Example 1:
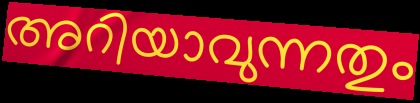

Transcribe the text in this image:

അറിയാവുന്നതും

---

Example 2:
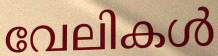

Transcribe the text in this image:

വേലികൾ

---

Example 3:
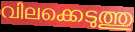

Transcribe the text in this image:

വിലക്കെടുത്തു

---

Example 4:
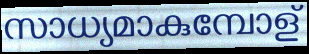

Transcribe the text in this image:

സാധ്യമാകുമ്പോള്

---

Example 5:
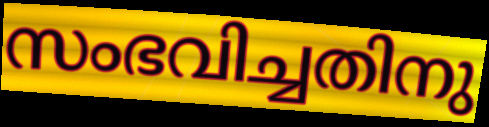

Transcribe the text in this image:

സംഭവിച്ചതിനു